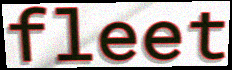
fleet